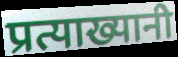
प्रत्याख्यानी